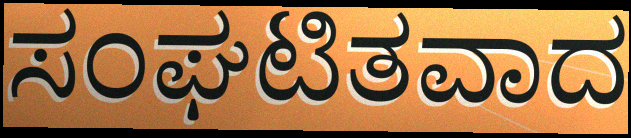
ಸಂಘಟಿತವಾದ